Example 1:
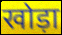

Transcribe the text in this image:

खोड़ा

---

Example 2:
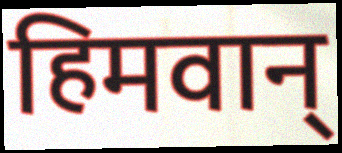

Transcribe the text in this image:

हिमवान्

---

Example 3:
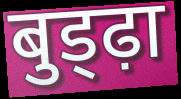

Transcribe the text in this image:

बुड्ढ़ा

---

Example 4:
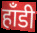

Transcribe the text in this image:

हाँडी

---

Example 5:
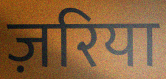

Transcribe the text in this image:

ज़रिया